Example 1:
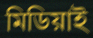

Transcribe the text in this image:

মিডিয়াই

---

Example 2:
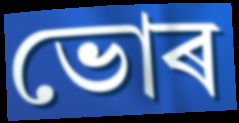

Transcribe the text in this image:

ভোৰ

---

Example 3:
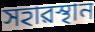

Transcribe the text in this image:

সহাৱস্থান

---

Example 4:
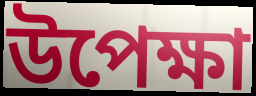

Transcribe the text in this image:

উপেক্ষা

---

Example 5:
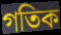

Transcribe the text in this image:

গতিক